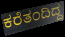
ಕರೆತಂದಿದ್ದ